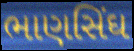
ભાણસિંઘ